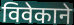
विवेकाने